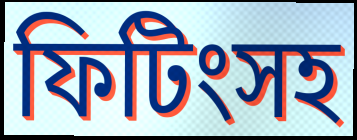
ফিটিংসহ